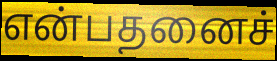
என்பதனைச்